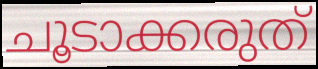
ചൂടാക്കരുത്